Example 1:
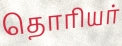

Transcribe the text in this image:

தொரியர்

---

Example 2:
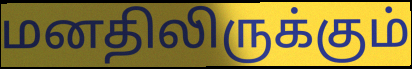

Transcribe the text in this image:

மனதிலிருக்கும்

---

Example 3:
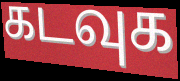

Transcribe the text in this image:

கடவுக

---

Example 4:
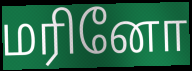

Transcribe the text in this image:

மரினோ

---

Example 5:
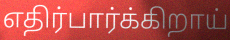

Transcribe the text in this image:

எதிர்பார்க்கிறாய்